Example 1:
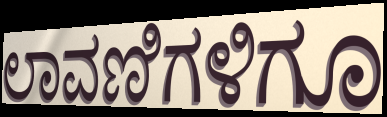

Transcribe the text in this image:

ಲಾವಣಿಗಳಿಗೂ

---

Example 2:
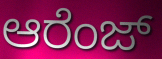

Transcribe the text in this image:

ಆರೆಂಜ್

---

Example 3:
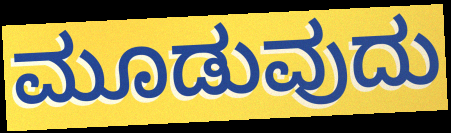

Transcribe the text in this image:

ಮೂಡುವುದು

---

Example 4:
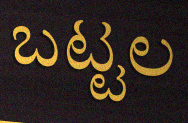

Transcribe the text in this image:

ಬಟ್ಟಲ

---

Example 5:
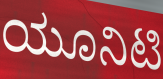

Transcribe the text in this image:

ಯೂನಿಟಿ